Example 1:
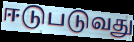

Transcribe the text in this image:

ஈடுபடுவது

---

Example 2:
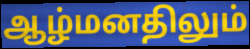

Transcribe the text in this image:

ஆழ்மனதிலும்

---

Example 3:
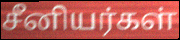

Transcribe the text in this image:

சீனியர்கள்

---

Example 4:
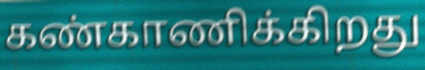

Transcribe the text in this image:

கண்காணிக்கிறது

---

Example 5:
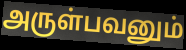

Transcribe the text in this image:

அருள்பவனும்